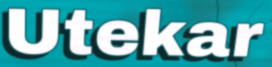
Utekar